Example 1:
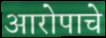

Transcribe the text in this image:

आरोपाचे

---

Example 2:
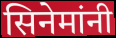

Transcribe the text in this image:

सिनेमांनी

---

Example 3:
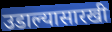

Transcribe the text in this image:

उडाल्यासारखी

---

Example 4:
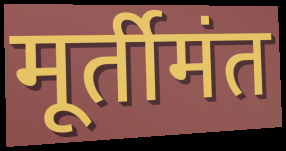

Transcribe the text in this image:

मूर्तीमंत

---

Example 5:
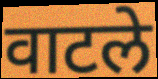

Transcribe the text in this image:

वाटले